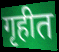
गृहीत